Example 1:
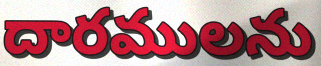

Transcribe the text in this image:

దారములను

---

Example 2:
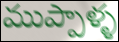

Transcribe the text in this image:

ముప్పాళ్ళ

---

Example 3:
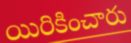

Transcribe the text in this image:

యిరికించారు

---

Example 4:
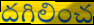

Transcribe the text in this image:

దగిలించ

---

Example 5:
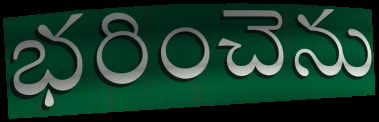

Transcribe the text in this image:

భరించెను